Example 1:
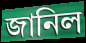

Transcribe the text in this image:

জানিল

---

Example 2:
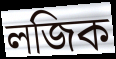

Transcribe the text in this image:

লজিক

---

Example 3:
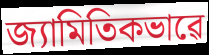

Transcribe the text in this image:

জ্যামিতিকভাৱে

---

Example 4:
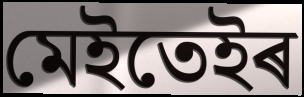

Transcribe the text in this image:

মেইতেইৰ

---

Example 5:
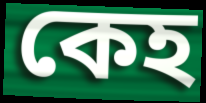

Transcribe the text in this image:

কেহ